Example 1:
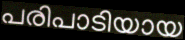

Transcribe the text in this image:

പരിപാടിയായ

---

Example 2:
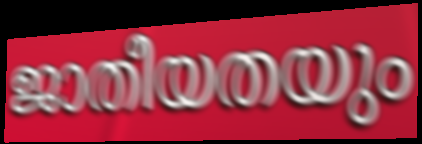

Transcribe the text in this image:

ജാതീയതയും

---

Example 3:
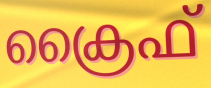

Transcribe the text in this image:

ക്രൈഫ്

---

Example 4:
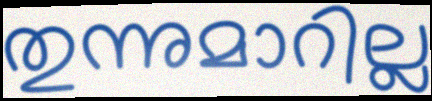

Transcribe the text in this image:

തുന്നുമാറില്ല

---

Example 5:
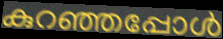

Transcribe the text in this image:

കുറഞ്ഞപ്പോൾ